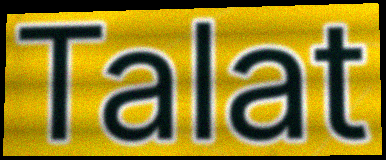
Talat